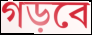
গড়বে